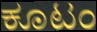
ಕೂಟಂ